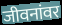
जीवनांवर